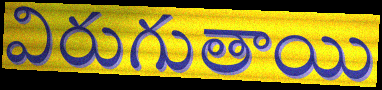
విరుగుతాయి